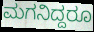
ಮಗನಿದ್ದರೂ